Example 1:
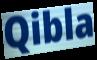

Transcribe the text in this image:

Qibla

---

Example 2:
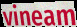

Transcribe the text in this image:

vineam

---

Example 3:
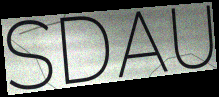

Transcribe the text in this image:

SDAU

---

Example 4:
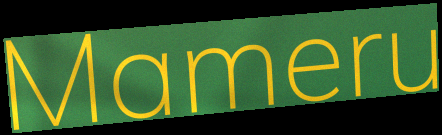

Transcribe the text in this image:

Mameru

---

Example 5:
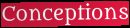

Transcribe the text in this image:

Conceptions